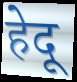
हेदू